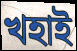
খহাই